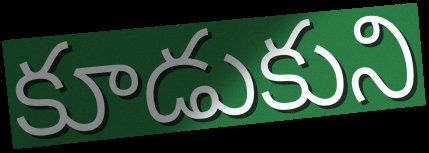
కూడుకుని